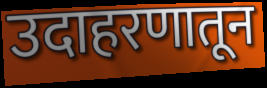
उदाहरणातून